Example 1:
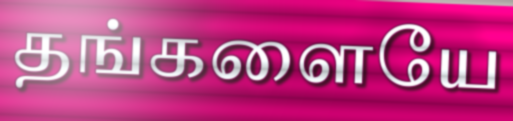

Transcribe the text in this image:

தங்களையே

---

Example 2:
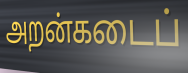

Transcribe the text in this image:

அறன்கடைப்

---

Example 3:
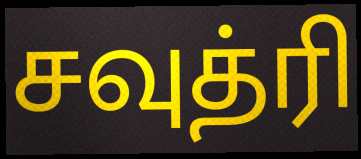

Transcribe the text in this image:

சவுத்ரி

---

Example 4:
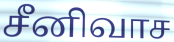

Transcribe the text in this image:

சீனிவாச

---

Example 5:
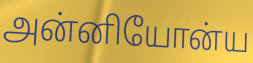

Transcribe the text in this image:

அன்னியோன்ய